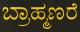
ಬ್ರಾಹ್ಮಣರೆ